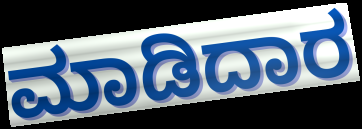
ಮಾಡಿದಾರ